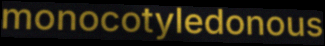
monocotyledonous